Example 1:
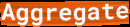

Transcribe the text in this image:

Aggregate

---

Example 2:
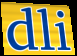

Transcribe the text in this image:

dli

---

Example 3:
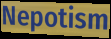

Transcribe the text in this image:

Nepotism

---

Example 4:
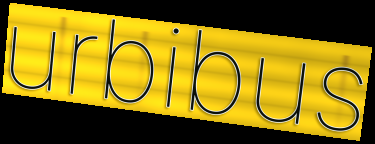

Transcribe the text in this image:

urbibus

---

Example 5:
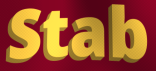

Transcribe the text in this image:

Stab